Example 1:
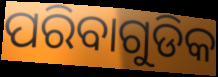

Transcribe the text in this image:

ପରିବାଗୁଡିକ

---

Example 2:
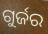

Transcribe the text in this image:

ଗୁର୍ଜର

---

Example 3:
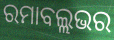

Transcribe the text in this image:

ରମାବଲ୍ଲଭର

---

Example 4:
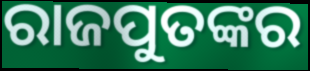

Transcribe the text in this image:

ରାଜପୁତଙ୍କର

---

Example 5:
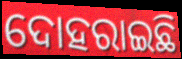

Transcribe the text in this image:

ଦୋହରାଇଛି